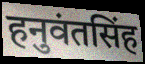
हनुवंतसिंह